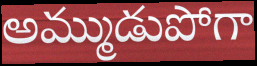
అమ్ముడుపోగా